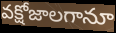
వక్షోజాలగానూ